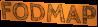
FODMAP